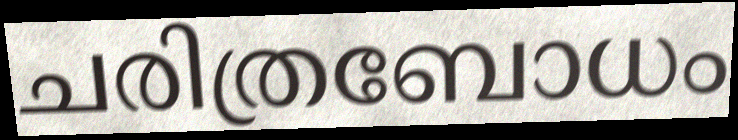
ചരിത്രബോധം